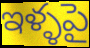
ఇళ్ళపై